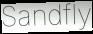
Sandfly